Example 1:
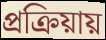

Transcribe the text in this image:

প্রক্রিয়ায়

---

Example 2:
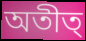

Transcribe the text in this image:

অতীত্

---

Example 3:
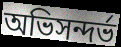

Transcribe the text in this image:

অভিসন্দর্ভ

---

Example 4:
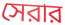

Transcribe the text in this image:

সেরার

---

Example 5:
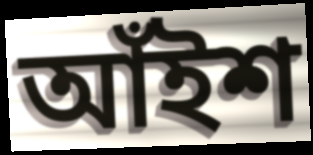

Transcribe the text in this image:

আঁইশ